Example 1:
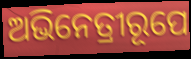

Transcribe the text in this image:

ଅଭିନେତ୍ରୀରୂପେ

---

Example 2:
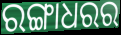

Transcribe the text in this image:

ରଙ୍ଗାଧରର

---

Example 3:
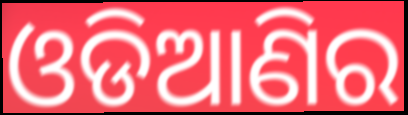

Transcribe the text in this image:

ଓଡିଆଣିର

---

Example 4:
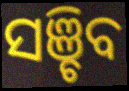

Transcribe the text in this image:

ସଞ୍ଚିବ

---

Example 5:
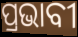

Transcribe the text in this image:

ପ୍ରଭାବୀ